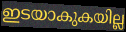
ഇടയാകുകയില്ല